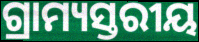
ଗ୍ରାମ୍ୟସ୍ତରୀୟ